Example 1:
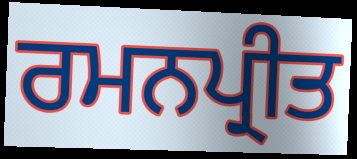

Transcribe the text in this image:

ਰਮਨਪ੍ਰੀਤ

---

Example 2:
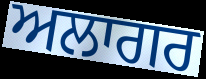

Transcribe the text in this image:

ਅਲਾਗਰ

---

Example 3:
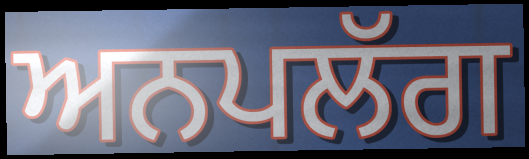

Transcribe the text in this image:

ਅਨਪਲੱਗ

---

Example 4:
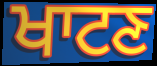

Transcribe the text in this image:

ਖਾਟਣ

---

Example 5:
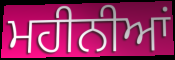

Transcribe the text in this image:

ਮਹੀਨੀਆਂ